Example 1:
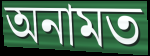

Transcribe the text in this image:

অনামত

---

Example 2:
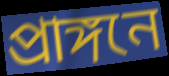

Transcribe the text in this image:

প্রাঙ্গনে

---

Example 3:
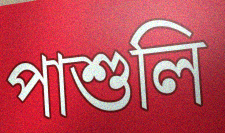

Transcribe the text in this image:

পাশুলি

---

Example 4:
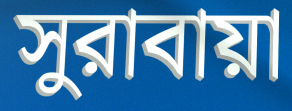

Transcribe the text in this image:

সুরাবায়া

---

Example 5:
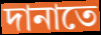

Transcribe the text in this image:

দানাতে